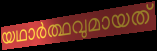
യഥാർത്ഥവുമായത്